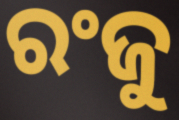
ରଂଜୁ